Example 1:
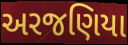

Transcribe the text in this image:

અરજણિયા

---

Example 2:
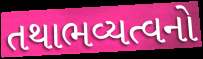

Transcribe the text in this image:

તથાભવ્યત્વનો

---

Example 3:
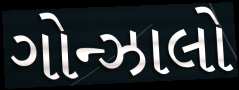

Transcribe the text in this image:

ગોન્ઝાલો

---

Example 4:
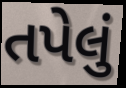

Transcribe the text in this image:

તપેલું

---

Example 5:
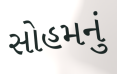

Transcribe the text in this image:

સોહમનું